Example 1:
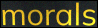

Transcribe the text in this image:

morals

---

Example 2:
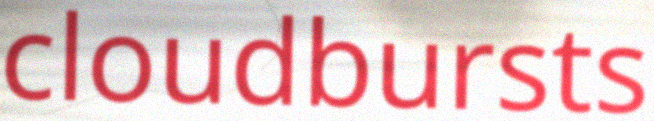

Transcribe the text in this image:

cloudbursts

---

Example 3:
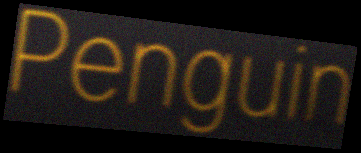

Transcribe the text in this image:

Penguin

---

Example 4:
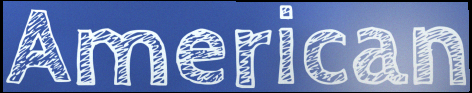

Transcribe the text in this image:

American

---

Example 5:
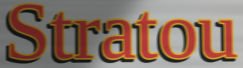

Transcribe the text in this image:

Stratou